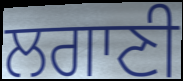
ਲਗਾਣੀ